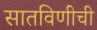
सातविणीची